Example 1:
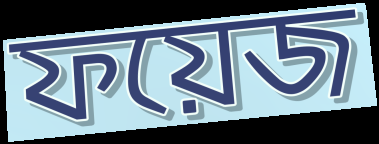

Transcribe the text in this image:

ফয়েজ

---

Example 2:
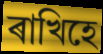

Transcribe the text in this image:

ৰাখিহে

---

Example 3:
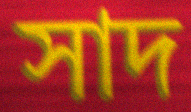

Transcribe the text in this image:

সাদ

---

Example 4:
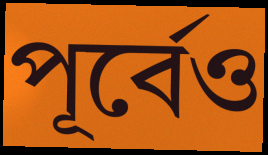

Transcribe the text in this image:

পূৰ্বেও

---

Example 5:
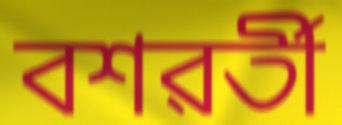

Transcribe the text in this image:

বশৱৰ্তী